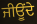
ਜੀਊਂਦੇ